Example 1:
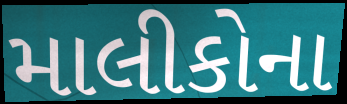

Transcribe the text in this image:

માલીકોના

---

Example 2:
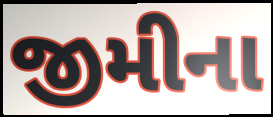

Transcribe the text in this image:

જીમીના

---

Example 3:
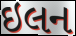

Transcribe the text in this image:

ઇલન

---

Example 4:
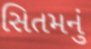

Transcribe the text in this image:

સિતમનું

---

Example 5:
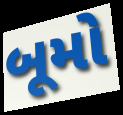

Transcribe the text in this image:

બૂમો